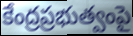
కేంద్రప్రభుత్వంపై